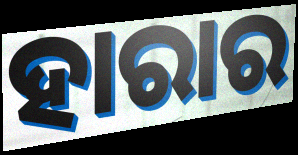
ହାରାର